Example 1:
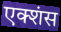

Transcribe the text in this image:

एक्शंस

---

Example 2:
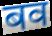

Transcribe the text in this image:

बव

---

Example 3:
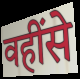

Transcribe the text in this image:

वहींसे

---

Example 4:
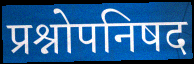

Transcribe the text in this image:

प्रश्नोपनिषद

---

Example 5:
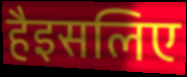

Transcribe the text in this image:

हैइसलिए